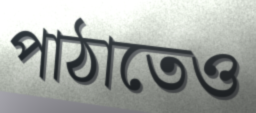
পাঠাতেও